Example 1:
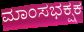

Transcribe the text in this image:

ಮಾಂಸಭಕ್ಷಕ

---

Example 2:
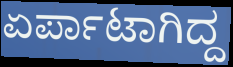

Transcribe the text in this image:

ಏರ್ಪಾಟಾಗಿದ್ದ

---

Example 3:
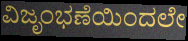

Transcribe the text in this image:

ವಿಜೃಂಭಣೆಯಿಂದಲೇ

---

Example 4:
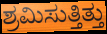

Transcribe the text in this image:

ಶ್ರಮಿಸುತ್ತಿತ್ತು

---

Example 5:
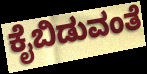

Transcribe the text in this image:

ಕೈಬಿಡುವಂತೆ